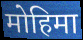
मोहिमा